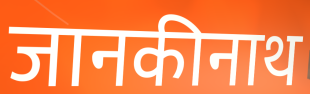
जानकीनाथ